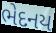
ભેદનય